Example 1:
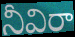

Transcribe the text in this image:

నీవిరా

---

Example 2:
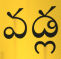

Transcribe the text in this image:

వడ్ల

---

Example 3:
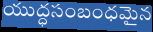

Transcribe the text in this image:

యుద్ధసంబంధమైన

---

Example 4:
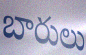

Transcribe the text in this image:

బారులు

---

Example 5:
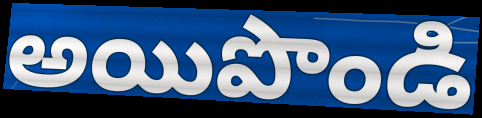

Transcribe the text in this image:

అయిపొండి